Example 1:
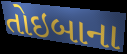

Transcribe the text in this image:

તોઇબાના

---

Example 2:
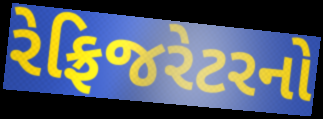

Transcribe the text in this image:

રેફ્રિજરેટરનો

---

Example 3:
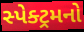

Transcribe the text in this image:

સ્પેક્ટ્રમનો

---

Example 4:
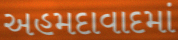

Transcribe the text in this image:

અહમદાવાદમાં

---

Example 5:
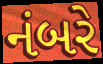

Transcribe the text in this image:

નંબરે